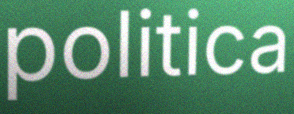
politica